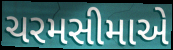
ચરમસીમાએ